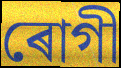
ৰোগী